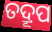
ତଦ୍ରୂପ